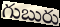
గుబురు